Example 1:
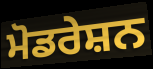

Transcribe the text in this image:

ਮੋਡਰੇਸ਼ਨ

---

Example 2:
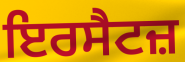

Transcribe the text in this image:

ਇਰਸੈਟਜ਼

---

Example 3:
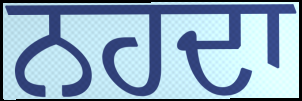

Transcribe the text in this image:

ਨਹਦਾ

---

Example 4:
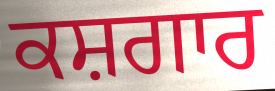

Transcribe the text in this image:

ਕਸ਼ਗਾਰ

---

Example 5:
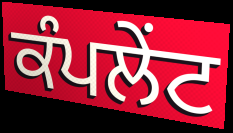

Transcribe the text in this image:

ਕੰਪਲੇਂਟ